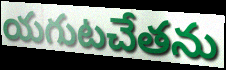
యగుటచేతను